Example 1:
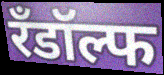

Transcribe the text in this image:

रँडॉल्फ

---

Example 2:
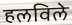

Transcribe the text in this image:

हलविले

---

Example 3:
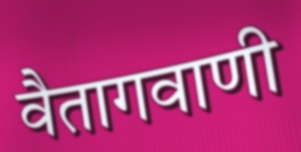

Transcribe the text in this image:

वैतागवाणी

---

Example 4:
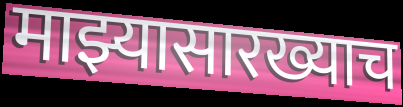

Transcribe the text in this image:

माझ्यासारख्याच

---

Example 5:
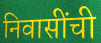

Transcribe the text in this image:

निवासींची